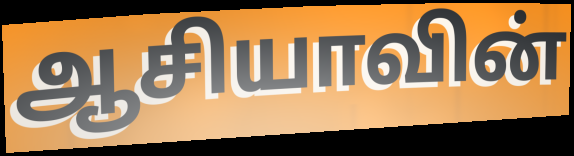
ஆசியாவின்